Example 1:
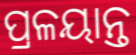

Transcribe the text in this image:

ପ୍ରଳୟାନ୍ତ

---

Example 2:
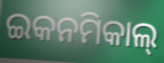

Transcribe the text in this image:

ଇକନମିକାଲ୍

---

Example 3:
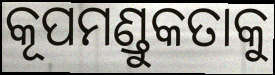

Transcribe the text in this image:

କୂପମଣ୍ଡୁକତାକୁ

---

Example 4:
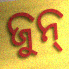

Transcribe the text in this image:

ଜୁନ୍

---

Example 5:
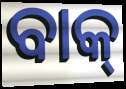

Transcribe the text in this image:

ବାକ୍